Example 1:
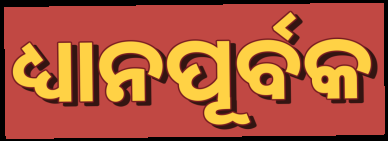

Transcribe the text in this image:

ଧ୍ୟାନପୂର୍ବକ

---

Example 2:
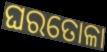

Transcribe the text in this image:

ଘରତୋଳା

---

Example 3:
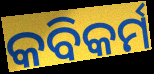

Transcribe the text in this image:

କବିକର୍ମ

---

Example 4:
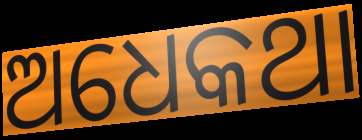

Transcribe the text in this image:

ଅଧେକଥା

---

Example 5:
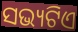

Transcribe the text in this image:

ସଭ୍ୟଟିଏ